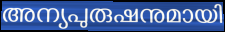
അന്യപുരുഷനുമായി